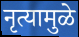
नृत्यामुळे